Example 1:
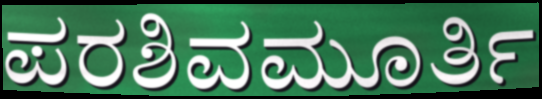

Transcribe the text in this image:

ಪರಶಿವಮೂರ್ತಿ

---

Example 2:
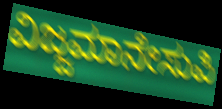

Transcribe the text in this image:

ವಿಜ್ಜಮಾನೇಸುಪಿ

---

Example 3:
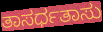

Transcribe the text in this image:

ತಾಸರ್ಧತಾಸು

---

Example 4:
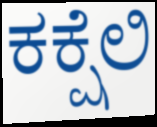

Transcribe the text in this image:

ಕಕ್ಷೆಲಿ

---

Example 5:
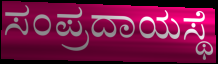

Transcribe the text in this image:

ಸಂಪ್ರದಾಯಸ್ಥೆ